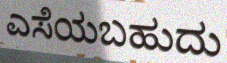
ಎಸೆಯಬಹುದು